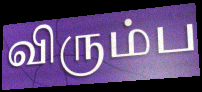
விரும்ப